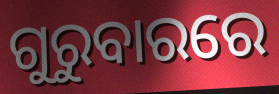
ଗୁରୁବାରରେ